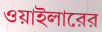
ওয়াইলারের